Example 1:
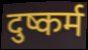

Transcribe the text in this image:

दुष्कर्म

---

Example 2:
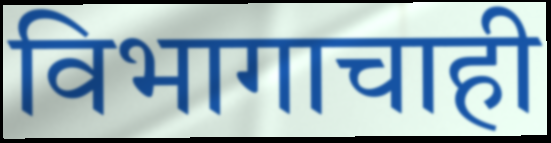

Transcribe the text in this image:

विभागाचाही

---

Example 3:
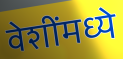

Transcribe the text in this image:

वेशींमध्ये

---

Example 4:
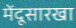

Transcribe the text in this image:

मेंदूसारखा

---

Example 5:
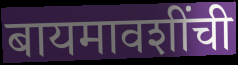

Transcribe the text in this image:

बायमावशींची